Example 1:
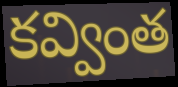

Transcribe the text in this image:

కవ్వింత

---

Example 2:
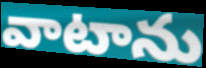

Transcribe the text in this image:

వాటాను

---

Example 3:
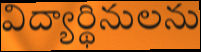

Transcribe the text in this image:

విద్యార్థినులను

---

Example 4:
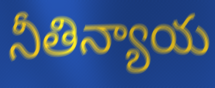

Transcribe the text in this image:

నీతిన్యాయ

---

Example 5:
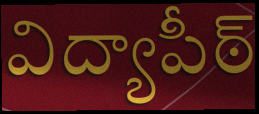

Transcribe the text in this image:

విద్యాపీఠ్